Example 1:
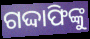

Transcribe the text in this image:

ଗଦ୍ଦାଫିଙ୍କୁ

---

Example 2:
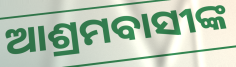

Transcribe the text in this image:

ଆଶ୍ରମବାସୀଙ୍କ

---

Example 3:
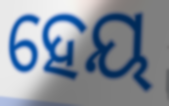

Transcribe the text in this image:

ହେୟ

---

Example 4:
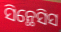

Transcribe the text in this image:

ସିନ୍ଥେସିସ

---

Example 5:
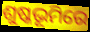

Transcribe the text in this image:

ଶୁଷ୍କଭୂମିରେ